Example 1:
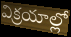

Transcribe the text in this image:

విక్రయాల్లో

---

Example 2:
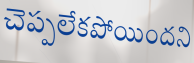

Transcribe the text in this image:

చెప్పలేకపోయిందని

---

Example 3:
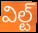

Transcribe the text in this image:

విల్ట్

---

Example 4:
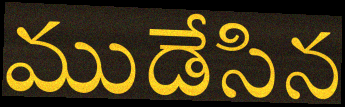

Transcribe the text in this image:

ముడేసిన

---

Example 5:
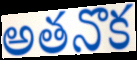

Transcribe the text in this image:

అతనొక